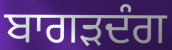
ਬਾਗੜਦੰਗ